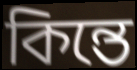
কিন্তে